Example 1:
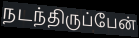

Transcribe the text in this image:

நடந்திருப்பேன்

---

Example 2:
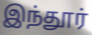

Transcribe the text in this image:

இந்தூர்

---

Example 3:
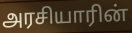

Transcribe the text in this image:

அரசியாரின்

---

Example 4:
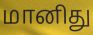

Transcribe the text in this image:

மானிது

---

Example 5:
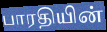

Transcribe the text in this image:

பாரதியின்